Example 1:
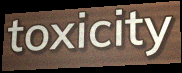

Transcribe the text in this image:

toxicity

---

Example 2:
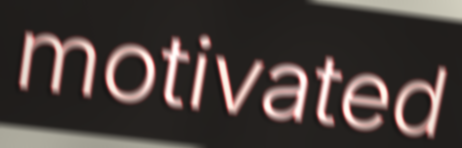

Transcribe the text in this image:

motivated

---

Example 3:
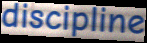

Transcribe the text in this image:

discipline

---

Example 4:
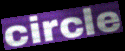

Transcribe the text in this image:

circle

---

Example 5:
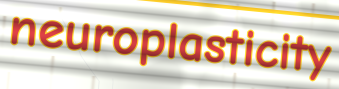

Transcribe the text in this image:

neuroplasticity